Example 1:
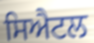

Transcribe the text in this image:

ਸਿਐਟਲ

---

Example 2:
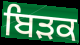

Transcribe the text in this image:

ਬਿੜਕ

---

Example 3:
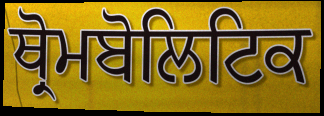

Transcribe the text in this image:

ਥ੍ਰੋਮਬੋਲਿਟਿਕ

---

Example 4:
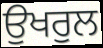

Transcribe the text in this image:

ਉਖਰੁਲ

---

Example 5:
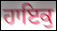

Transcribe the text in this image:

ਹਾਇਕੁ